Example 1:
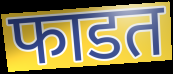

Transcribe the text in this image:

फाडत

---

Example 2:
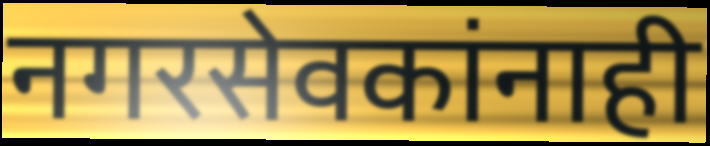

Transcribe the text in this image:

नगरसेवकांनाही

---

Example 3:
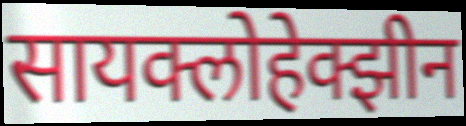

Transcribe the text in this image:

सायक्लोहेक्झीन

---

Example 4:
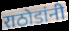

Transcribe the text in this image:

राठोडांनी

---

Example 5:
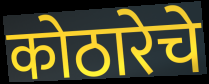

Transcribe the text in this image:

कोठारेचे